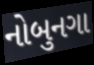
નોબુનગા